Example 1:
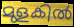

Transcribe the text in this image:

മുളകിൽ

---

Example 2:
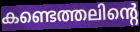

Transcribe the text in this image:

കണ്ടെത്തലിന്റെ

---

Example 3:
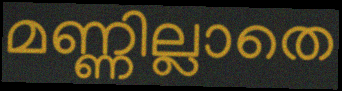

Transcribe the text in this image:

മണ്ണില്ലാതെ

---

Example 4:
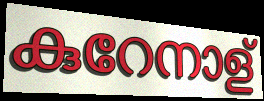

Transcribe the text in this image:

കുറേനാള്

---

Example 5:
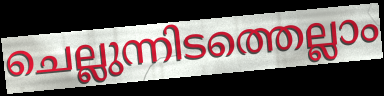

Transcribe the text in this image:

ചെല്ലുന്നിടത്തെല്ലാം